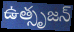
ఉత్సృజన్